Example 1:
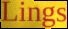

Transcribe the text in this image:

Lings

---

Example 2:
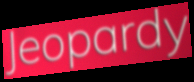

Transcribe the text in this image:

Jeopardy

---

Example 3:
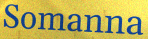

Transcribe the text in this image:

Somanna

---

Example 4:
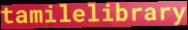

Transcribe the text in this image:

tamilelibrary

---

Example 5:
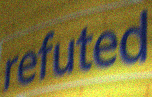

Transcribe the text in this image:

refuted